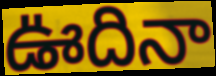
ఊదినా